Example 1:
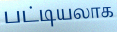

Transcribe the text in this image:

பட்டியலாக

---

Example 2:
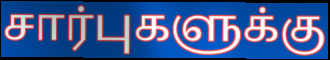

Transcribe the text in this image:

சார்புகளுக்கு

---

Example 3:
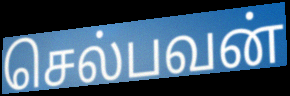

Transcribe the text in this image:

செல்பவன்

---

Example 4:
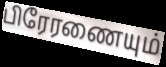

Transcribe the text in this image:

பிரேரணையும்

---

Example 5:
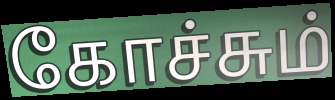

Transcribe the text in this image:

கோச்சும்